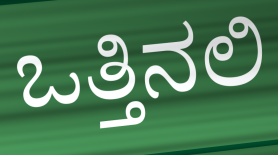
ಒತ್ತಿನಲಿ